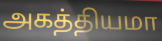
அகத்தியமா